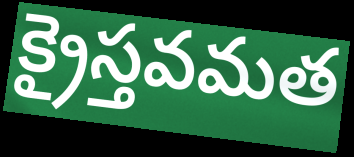
క్రైస్తవమత